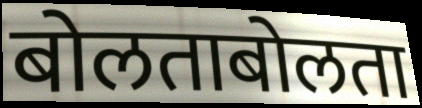
बोलताबोलता